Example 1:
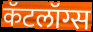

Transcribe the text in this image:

कॅटलॉग्स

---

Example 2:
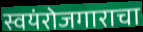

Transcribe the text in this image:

स्वयंरोजगाराचा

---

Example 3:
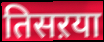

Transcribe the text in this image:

तिसऱया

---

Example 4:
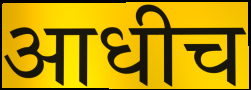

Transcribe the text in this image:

आधीच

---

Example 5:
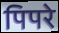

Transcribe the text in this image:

पिपरे